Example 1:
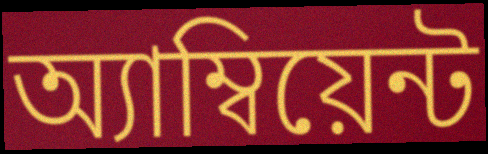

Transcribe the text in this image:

অ্যাম্বিয়েন্ট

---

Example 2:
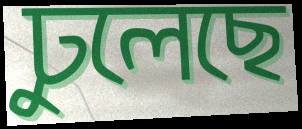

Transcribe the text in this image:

ঢুলেছে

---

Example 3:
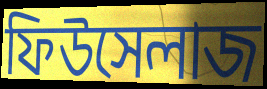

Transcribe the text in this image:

ফিউসেলাজ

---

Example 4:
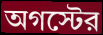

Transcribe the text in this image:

অগস্টের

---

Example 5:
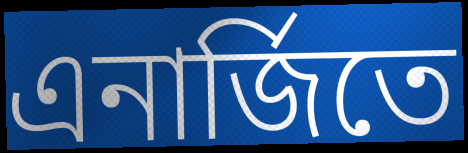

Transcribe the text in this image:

এনার্জিতে